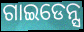
ଗାଇଡେନ୍ସ